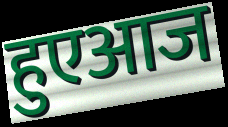
हुएआज